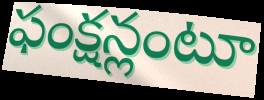
ఫంక్షన్లంటూ